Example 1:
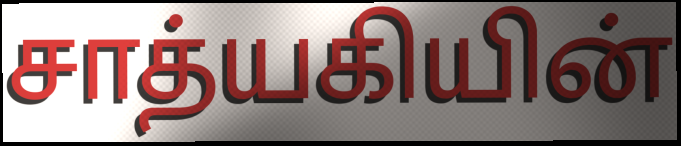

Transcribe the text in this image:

சாத்யகியின்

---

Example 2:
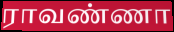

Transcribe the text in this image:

ராவண்ணா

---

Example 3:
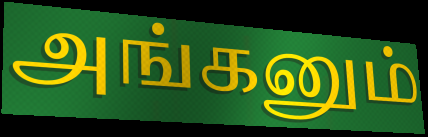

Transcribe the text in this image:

அங்கனும்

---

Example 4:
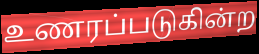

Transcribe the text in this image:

உணரப்படுகின்ற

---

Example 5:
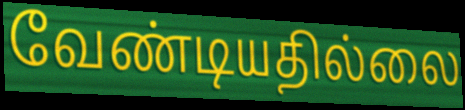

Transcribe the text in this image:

வேண்டியதில்லை